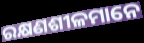
ରକ୍ଷଣଶୀଳମାନେ